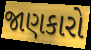
જાણકારો